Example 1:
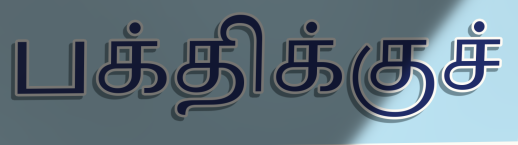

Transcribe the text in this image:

பக்திக்குச்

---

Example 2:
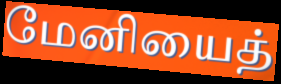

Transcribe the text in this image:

மேனியைத்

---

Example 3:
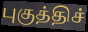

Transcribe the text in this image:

புகுத்திச்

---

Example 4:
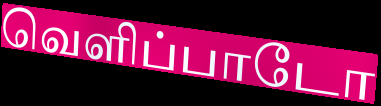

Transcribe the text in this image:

வெளிப்பாடோ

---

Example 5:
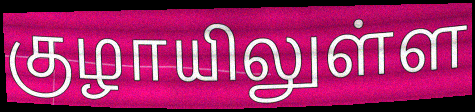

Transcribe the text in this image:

குழாயிலுள்ள